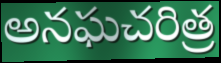
అనఘచరిత్ర